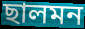
ছালমন